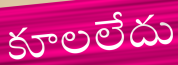
కూలలేదు